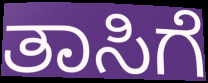
ತಾಸಿಗೆ